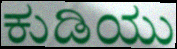
ಕುಡಿಯು